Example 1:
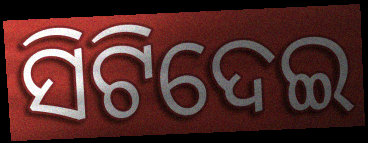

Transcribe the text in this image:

ସିଟିଦେଇ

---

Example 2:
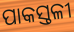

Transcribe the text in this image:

ପାକସ୍ତଳୀ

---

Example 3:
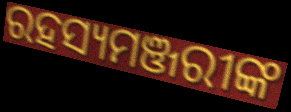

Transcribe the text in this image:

ରହସ୍ୟମଞ୍ଜରୀଙ୍କ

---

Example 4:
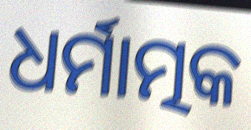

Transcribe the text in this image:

ଧର୍ମାତ୍ମକ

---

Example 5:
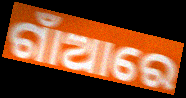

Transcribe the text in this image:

ଗାଁଆରେ